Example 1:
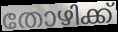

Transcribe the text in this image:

തോഴിക്ക്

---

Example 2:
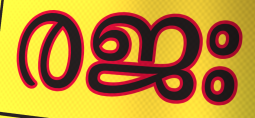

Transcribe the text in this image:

രജഃ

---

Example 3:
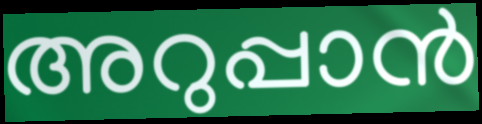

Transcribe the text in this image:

അറുപ്പാൻ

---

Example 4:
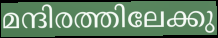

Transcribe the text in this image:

മന്ദിരത്തിലേക്കു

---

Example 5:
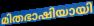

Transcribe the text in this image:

മിതഭാഷിയായി